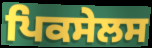
ਪਿਕਸੇਲਸ